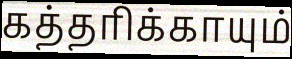
கத்தரிக்காயும்